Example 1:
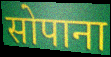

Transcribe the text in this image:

सोपाना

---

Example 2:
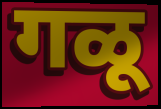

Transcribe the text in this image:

गळू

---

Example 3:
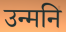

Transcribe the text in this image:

उन्मनि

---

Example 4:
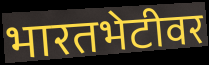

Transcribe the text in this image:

भारतभेटीवर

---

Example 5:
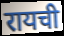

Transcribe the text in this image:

रायची